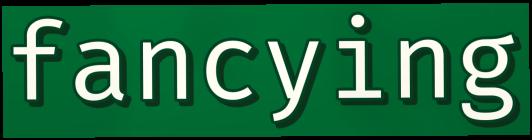
fancying